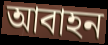
আবাহন